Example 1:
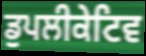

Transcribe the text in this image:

ਡੁਪਲੀਕੇਟਿਵ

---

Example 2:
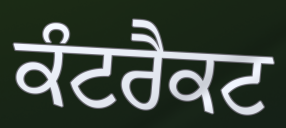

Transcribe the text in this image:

ਕੰਟਰੈਕਟ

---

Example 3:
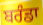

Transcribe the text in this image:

ਬਰੰਡਾ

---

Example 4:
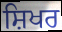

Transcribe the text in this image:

ਸ਼ਿਖਰ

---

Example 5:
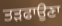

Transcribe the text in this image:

ਤੜਫਾਉਣਾ